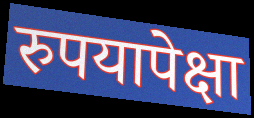
रुपयापेक्षा